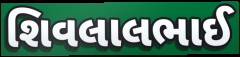
શિવલાલભાઈ